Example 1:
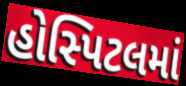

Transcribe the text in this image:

હોસ્પિટલમાં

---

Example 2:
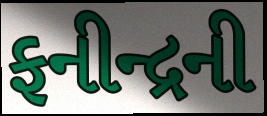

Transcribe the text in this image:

ફનીન્દ્રની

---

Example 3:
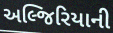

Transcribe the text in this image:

અલ્જિરિયાની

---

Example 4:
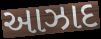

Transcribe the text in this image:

આઝાદ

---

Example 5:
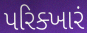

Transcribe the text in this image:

પરિક્ખારં